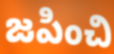
జపించి